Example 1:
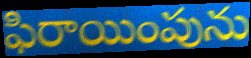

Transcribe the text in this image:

ఫిరాయింపును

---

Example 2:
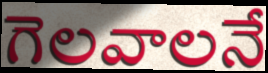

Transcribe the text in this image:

గెలవాలనే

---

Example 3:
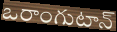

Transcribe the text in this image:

ఒరాంగుటాన్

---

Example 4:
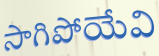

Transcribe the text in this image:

సాగిపోయేవి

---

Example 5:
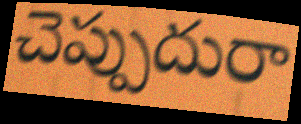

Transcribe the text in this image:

చెప్పుదురా